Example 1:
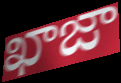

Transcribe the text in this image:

ఖాజా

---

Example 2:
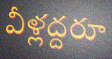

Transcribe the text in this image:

వీళ్లద్దరూ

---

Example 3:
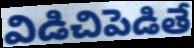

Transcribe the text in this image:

విడిచిపెడితే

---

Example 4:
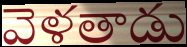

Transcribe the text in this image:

వెళతాడు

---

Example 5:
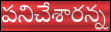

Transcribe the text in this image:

పనిచేశారన్న